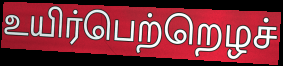
உயிர்பெற்றெழச்